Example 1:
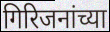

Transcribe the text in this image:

गिरिजनांच्या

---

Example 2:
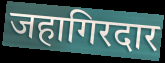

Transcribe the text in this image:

जहागिरदार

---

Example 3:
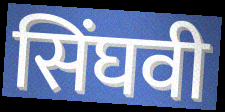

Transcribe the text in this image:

सिंघवी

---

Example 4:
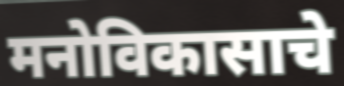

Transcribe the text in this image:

मनोविकासाचे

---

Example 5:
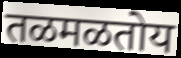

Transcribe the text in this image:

तळमळतोय